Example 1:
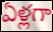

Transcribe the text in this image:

ఏళ్లగా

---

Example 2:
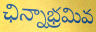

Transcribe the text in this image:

ఛిన్నాభ్రమివ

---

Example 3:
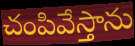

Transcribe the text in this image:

చంపివేస్తాను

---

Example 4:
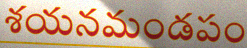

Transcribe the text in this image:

శయనమండపం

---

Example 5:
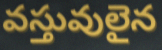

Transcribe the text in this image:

వస్తువులైన